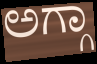
ಅಗ್ಗಾ